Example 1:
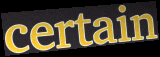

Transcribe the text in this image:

certain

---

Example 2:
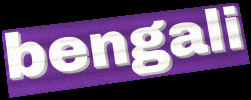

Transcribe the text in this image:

bengali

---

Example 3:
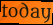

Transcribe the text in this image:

today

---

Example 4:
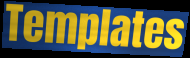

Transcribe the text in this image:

Templates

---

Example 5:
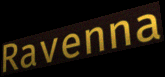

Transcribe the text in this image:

Ravenna